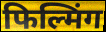
फिल्मिंग